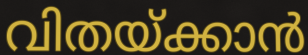
വിതയ്ക്കാൻ